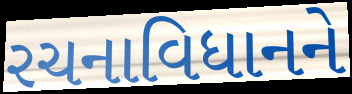
રચનાવિધાનને